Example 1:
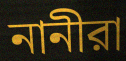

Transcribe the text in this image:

নানীরা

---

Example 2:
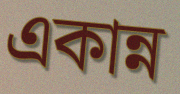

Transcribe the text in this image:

একান্ন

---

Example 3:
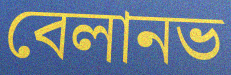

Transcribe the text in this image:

বেলানভ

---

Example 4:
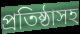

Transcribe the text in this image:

প্রতিষ্ঠাসহ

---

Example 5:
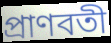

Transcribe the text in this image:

প্রাণবতী